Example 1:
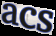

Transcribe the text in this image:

acs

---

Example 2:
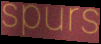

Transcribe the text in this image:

spurs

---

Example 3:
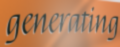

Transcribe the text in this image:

generating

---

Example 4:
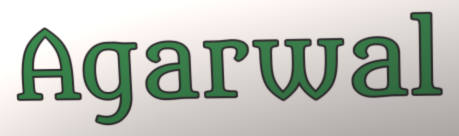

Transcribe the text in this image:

Agarwal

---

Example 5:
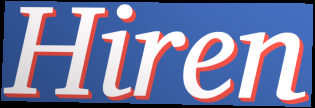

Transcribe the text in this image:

Hiren